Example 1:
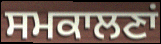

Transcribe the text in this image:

ਸਮਕਾਲਣਾਂ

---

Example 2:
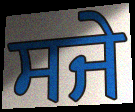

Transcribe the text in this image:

ਸਜੇ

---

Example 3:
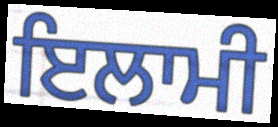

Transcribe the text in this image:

ਇਲਾਮੀ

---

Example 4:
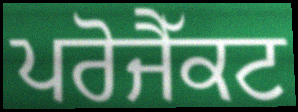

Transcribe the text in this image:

ਪਰੋਜੈੱਕਟ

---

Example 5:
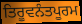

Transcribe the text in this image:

ਤਿਰੂਵਨੰਤਪੂਰਮ